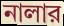
নালার